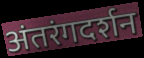
अंतरंगदर्शन